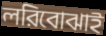
লরিবোঝাই